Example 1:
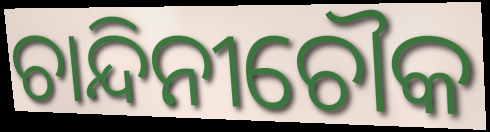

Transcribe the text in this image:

ଚାନ୍ଦିନୀଚୌକ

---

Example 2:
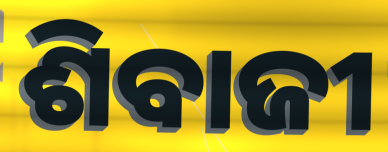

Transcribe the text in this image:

ଶିବାଜୀ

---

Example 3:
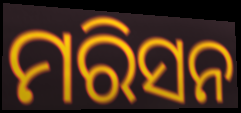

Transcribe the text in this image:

ମରିସନ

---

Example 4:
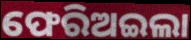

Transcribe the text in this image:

ଫେରିଅଇଲା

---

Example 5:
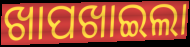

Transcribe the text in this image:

ଖାପଖାଇଲା